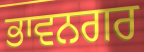
ਭਾਵਨਗਰ